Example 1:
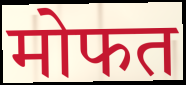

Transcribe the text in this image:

मोफत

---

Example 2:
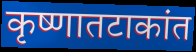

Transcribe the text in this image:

कृष्णातटाकांत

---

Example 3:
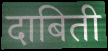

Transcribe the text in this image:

दाबिती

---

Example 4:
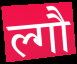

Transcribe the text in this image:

ल्गौ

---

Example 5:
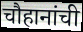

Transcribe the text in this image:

चौहानांची